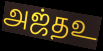
அஜ்தஉ